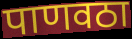
पाणवठा